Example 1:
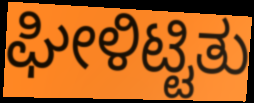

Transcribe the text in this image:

ಘೀಳಿಟ್ಟಿತು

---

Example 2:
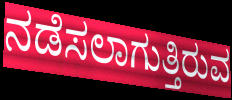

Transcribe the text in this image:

ನಡೆಸಲಾಗುತ್ತಿರುವ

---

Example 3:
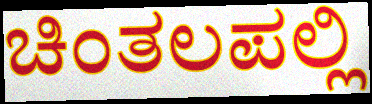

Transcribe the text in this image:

ಚಿಂತಲಪಲ್ಲಿ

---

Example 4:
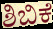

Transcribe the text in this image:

ಶಿಬಿಕೆ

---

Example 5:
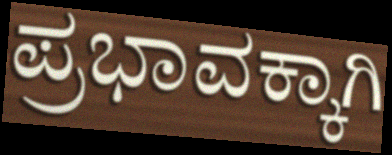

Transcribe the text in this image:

ಪ್ರಭಾವಕ್ಕಾಗಿ